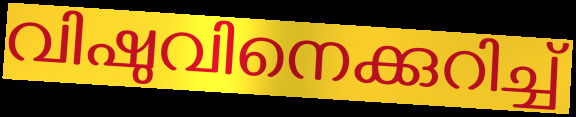
വിഷുവിനെക്കുറിച്ച്